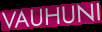
VAUHUNI